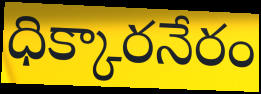
ధిక్కారనేరం